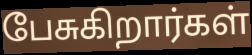
பேசுகிறார்கள்